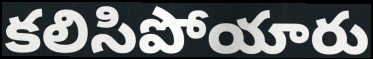
కలిసిపోయారు